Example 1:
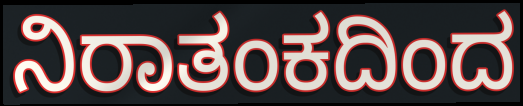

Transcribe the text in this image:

ನಿರಾತಂಕದಿಂದ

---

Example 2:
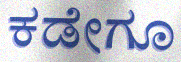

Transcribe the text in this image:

ಕಡೇಗೂ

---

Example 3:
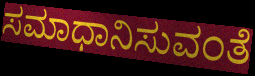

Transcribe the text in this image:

ಸಮಾಧಾನಿಸುವಂತೆ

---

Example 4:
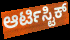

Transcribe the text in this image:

ಆರ್ಟಿಸ್ಟಿಕ್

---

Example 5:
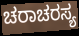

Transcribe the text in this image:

ಚರಾಚರಸ್ಯ